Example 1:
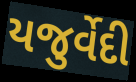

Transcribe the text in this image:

યજુર્વેદી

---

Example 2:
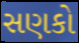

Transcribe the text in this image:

સણકો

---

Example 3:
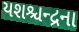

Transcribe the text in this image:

યશશ્ચન્દ્રના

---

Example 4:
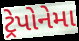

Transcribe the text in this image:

ટ્રેપોનેમા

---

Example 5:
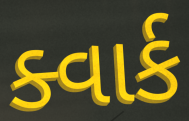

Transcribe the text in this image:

ક્વાર્ક